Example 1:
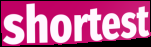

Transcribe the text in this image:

shortest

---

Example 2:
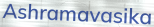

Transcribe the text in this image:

Ashramavasika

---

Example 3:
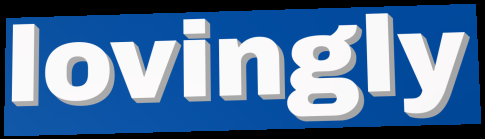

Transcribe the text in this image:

lovingly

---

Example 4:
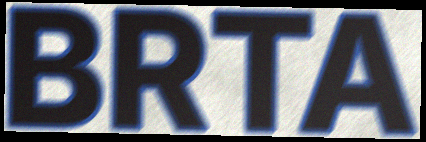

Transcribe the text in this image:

BRTA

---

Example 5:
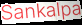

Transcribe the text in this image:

Sankalpa